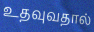
உதவுவதால்